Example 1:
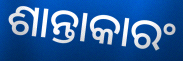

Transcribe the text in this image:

ଶାନ୍ତାକାରଂ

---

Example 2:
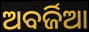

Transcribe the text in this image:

ଅବର୍ଜିଆ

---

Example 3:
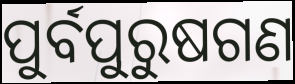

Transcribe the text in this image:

ପୁର୍ବପୁରୁଷଗଣ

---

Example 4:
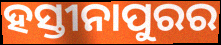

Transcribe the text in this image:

ହସ୍ତୀନାପୁରର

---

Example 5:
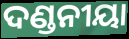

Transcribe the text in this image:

ଦଣ୍ଡନୀୟା